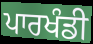
ਪਾਰਖੰਡੀ